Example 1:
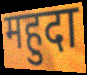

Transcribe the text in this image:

महुदा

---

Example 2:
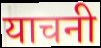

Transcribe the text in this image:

याचनी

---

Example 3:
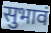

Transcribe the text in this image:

सुभावं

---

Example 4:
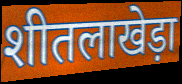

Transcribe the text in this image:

शीतलाखेड़ा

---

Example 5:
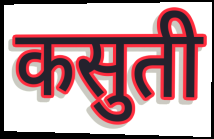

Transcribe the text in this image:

कसुती